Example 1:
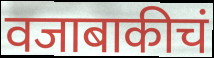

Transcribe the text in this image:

वजाबाकीचं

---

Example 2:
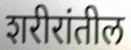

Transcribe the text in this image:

शरीरांतील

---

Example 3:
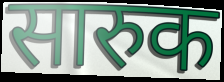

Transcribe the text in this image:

सारुक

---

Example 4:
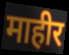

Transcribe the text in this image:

माहीर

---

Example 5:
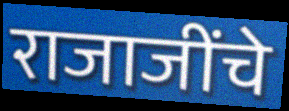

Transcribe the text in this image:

राजाजींचे